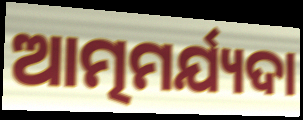
ଆତ୍ମମର୍ଯ୍ୟଦା